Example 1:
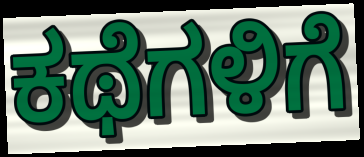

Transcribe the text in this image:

ಕಥೆಗಳಿಗೆ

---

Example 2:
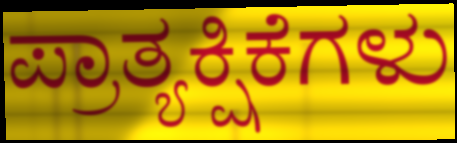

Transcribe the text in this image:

ಪ್ರಾತ್ಯಕ್ಷಿಕೆಗಳು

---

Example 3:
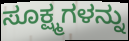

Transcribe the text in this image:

ಸೂಕ್ಷ್ಮಗಳನ್ನು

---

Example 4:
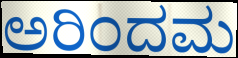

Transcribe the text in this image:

ಅರಿಂದಮ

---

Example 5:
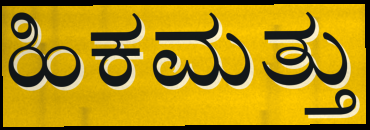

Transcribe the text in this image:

ಹಿಕಮತ್ತು